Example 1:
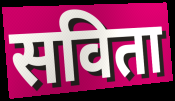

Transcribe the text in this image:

सविता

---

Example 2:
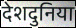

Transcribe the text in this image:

देशदुनिया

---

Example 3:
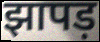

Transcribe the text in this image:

झापड़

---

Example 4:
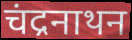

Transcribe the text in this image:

चंद्रनाथन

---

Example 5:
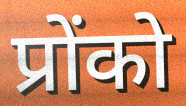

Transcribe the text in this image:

प्रोंको